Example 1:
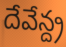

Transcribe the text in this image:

దేవేన్ద్ర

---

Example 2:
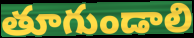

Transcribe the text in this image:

తూగుండాలి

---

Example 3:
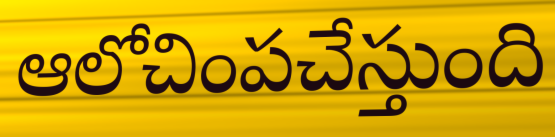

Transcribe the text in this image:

ఆలోచింపచేస్తుంది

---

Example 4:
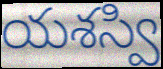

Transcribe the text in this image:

యశస్వి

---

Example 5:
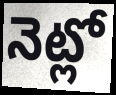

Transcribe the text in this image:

నెట్లో